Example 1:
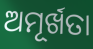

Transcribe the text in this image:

ଅମୂର୍ଖତା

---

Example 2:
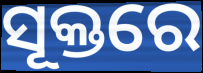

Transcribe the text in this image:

ସୂକ୍ତରେ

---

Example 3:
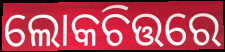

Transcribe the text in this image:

ଲୋକଚିତ୍ତରେ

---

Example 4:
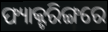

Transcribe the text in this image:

ଫ୍ୟାକ୍ଟରିଙ୍ଗରେ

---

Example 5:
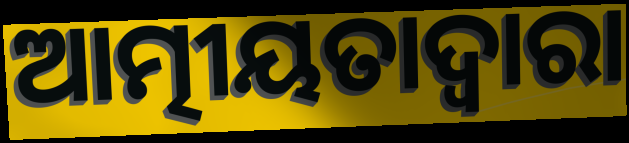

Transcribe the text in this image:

ଆତ୍ମୀୟତାଦ୍ଵାରା